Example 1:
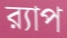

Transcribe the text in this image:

র‍্যাপ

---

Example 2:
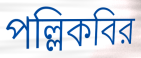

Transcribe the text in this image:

পল্লিকবির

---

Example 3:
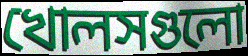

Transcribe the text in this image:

খোলসগুলো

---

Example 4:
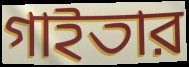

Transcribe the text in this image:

গাইতার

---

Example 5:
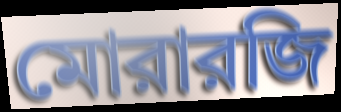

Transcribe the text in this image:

মোরারজি